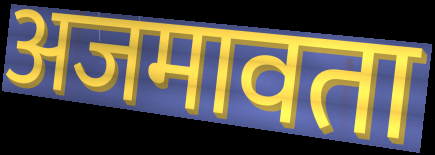
अजमावता